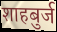
शाहबुर्ज